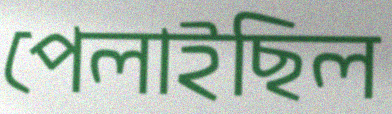
পেলাইছিল